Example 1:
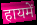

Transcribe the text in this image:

हायमें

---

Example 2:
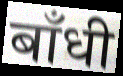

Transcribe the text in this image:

बाँधी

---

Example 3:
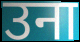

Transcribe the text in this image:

उना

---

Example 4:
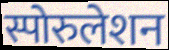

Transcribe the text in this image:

स्पोरुलेशन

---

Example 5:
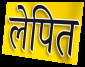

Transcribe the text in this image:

लेपित